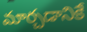
మార్చడానికే